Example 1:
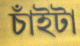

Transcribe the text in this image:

চাঁইটা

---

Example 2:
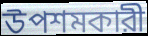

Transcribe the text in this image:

উপশমকারী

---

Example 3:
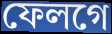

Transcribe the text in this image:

ফেলগে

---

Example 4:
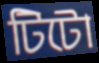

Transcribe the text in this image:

টিটো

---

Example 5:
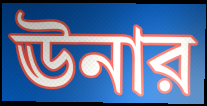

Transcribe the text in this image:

ঊনার